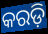
କରଡ଼ି